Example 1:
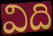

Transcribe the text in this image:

విది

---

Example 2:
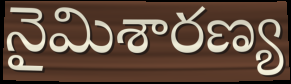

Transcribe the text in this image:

నైమిశారణ్య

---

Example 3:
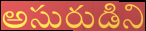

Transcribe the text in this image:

అసురుడిని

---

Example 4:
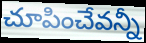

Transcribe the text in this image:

చూపించేవన్నీ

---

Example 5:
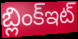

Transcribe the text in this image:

బ్లింక్ఇట్